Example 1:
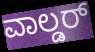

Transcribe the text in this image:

ವಾಲ್ಡರ್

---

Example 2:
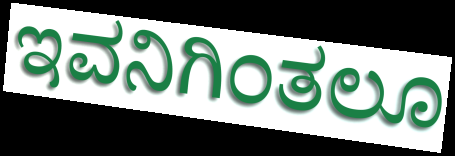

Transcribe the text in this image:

ಇವನಿಗಿಂತಲೂ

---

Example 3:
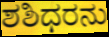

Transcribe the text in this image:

ಶಶಿಧರನು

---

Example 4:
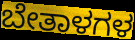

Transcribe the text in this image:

ಬೇತಾಳಗಳ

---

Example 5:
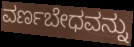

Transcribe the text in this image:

ವರ್ಣಬೇಧವನ್ನು